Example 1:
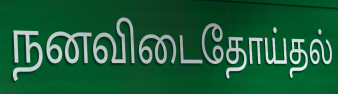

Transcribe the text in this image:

நனவிடைதோய்தல்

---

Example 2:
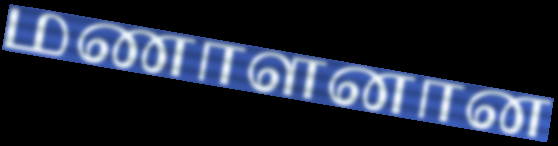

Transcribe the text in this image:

மணாளனான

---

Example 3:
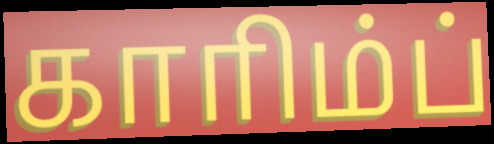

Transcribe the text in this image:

காரிம்ப்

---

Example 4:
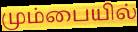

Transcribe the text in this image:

மும்பையில்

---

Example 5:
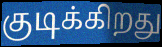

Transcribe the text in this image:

குடிக்கிறது